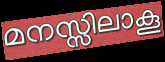
മനസ്സിലാകൂ